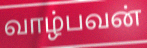
வாழ்பவன்